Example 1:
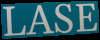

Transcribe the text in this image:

LASE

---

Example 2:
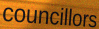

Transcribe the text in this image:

councillors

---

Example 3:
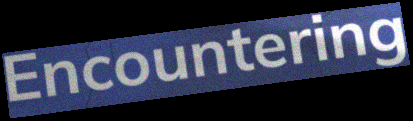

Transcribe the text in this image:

Encountering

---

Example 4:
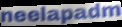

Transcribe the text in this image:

neelapadm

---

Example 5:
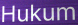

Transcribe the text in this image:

Hukum